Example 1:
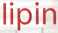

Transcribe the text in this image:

lipin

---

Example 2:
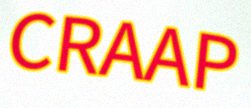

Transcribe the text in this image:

CRAAP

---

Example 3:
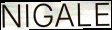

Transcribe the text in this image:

NIGALE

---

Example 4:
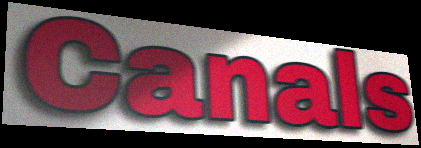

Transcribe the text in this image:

Canals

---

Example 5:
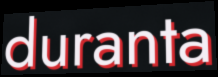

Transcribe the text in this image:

duranta